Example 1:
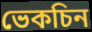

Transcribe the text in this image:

ভেকচিন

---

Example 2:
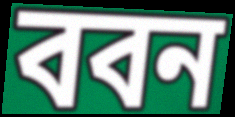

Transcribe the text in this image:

ববন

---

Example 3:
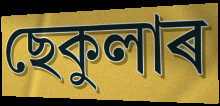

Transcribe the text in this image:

ছেকুলাৰ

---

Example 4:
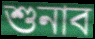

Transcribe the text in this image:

শুনাব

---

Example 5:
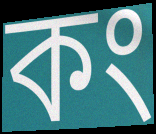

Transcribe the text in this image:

কং